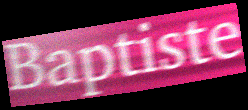
Baptiste